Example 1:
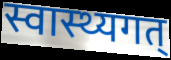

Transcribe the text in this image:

स्वास्थ्यगत्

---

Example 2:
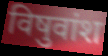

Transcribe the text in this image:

विषुवांश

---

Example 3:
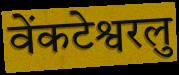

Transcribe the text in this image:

वेंकटेश्वरलु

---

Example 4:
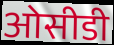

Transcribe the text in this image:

ओसीडी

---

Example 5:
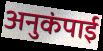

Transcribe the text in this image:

अनुकंपाई